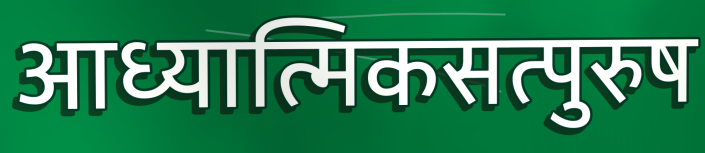
आध्यात्मिकसत्पुरुष